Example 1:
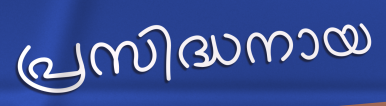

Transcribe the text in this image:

പ്രസിദ്ധനായ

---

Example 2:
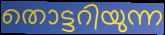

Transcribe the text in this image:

തൊട്ടറിയുന്ന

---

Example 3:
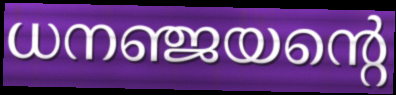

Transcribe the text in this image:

ധനഞ്ജയന്റെ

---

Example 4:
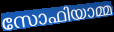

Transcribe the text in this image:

സോഫിയാമ്മ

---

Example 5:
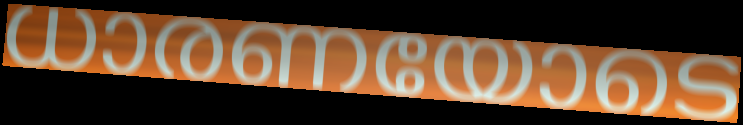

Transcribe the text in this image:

ധാരണയോടെ